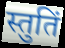
स्तुतिं